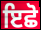
ਇਛੋ